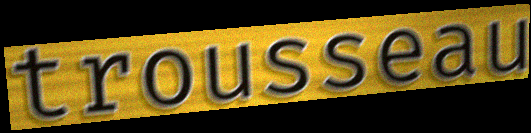
trousseau